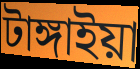
টাঙ্গাইয়া